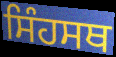
ਸਿੰਹਸਥ